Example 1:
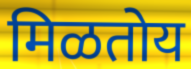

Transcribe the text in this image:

मिळतोय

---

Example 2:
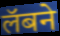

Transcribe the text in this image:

लॅबने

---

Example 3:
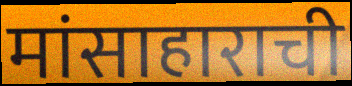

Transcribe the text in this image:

मांसाहाराची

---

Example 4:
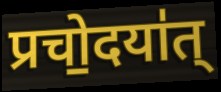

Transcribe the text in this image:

प्रचो॒दया॑त्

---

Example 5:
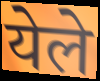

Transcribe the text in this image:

येले